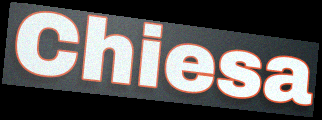
Chiesa